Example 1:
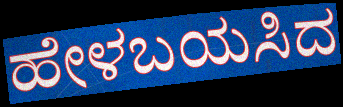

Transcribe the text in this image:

ಹೇಳಬಯಸಿದ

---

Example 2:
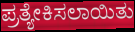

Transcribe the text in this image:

ಪ್ರತ್ಯೇಕಿಸಲಾಯಿತು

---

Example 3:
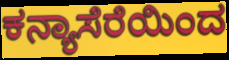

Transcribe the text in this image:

ಕನ್ಯಾಸೆರೆಯಿಂದ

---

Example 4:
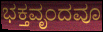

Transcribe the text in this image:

ಭಕ್ತವೃಂದವೂ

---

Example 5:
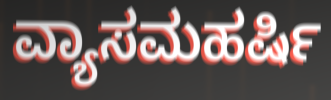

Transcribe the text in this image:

ವ್ಯಾಸಮಹರ್ಷಿ